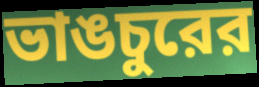
ভাঙচুরের